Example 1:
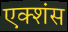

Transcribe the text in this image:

एक्शंस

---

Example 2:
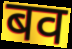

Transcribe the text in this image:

बव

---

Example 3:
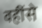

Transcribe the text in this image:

वहींसे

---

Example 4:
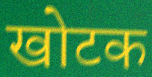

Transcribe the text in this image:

खोटक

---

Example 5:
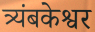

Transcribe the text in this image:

त्र्यंबकेश्वर